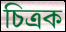
চিত্ৰক